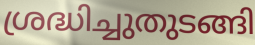
ശ്രദ്ധിച്ചുതുടങ്ങി